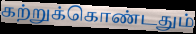
கற்றுக்கொண்டதும்